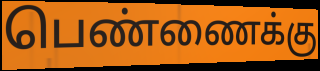
பெண்ணைக்கு